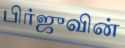
பிர்ஜுவின்